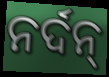
ନର୍ଦନ୍